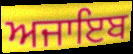
ਅਜਾਇਬ